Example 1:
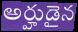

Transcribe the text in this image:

అర్హుడైన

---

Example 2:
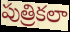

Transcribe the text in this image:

పుత్రికలా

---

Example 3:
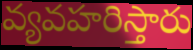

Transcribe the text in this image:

వ్యవహరిస్తారు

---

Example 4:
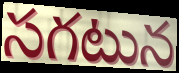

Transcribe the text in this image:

సగటున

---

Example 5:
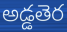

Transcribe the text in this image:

అడ్డతెర